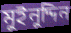
মুইনুদ্দিন